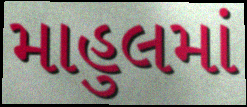
માહુલમાં